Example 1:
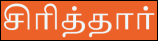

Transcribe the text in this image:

சிரித்தார்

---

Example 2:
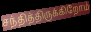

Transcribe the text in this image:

சந்தித்திருக்கிறோம்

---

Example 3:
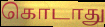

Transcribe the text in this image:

கொடாது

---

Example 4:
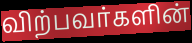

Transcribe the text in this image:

விற்பவர்களின்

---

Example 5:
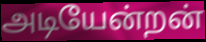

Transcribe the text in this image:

அடியேன்றன்